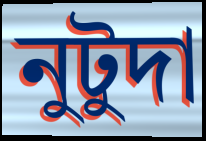
নুটুদা